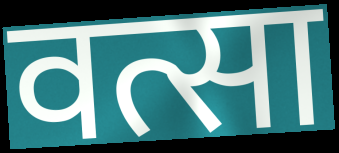
वत्सा